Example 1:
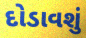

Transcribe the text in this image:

દોડાવશું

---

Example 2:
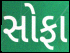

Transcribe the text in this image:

સોફા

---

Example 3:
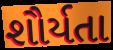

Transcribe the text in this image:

શૌર્યતા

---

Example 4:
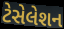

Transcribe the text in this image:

ટેસેલેશન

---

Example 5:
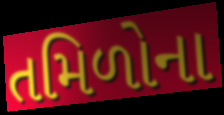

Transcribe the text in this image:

તમિળોના